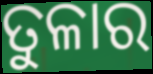
ତୁଳାର